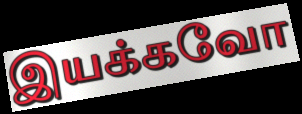
இயக்கவோ